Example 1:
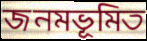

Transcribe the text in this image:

জনমভূমিত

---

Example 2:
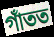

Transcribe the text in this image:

গাঁতত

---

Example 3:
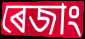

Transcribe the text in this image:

ৰেজাং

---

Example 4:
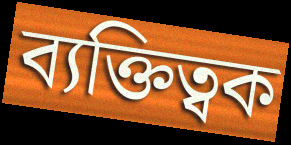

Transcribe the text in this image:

ব্যক্তিত্বক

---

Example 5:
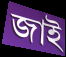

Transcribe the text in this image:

জাই